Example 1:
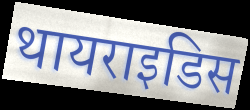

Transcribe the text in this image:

थायराइडिस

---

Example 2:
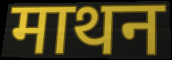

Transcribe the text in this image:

माथन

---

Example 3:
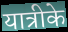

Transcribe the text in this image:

यात्रीके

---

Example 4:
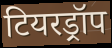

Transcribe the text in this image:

टियरड्रॉप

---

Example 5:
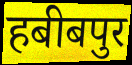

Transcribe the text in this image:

हबीबपुर